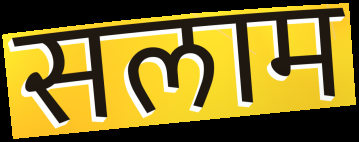
सलाम